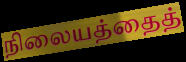
நிலையத்தைத்